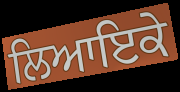
ਲਿਆਇਕੇ